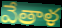
వేతాళ